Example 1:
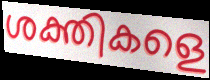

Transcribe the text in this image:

ശക്തികളെ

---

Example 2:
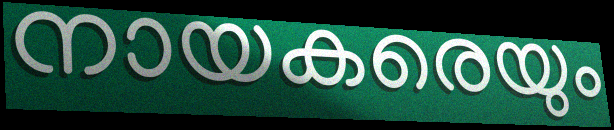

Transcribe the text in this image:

നായകരെയും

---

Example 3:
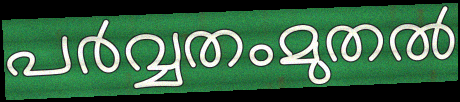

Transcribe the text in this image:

പർവ്വതംമുതൽ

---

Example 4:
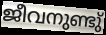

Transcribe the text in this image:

ജീവനുണ്ടു്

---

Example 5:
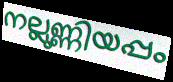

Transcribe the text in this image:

നല്ലുണ്ണിയപ്പം